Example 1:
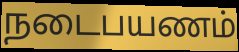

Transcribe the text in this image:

நடைபயணம்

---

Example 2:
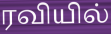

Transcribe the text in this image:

ரவியில்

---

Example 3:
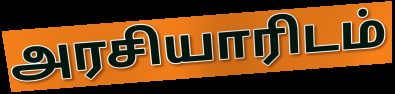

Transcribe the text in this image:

அரசியாரிடம்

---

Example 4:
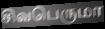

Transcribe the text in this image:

சிவபெருமா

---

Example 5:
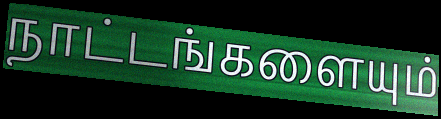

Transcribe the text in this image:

நாட்டங்களையும்